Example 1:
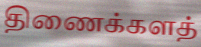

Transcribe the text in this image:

திணைக்களத்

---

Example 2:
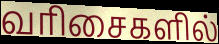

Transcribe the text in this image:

வரிசைகளில்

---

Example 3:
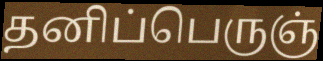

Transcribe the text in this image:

தனிப்பெருஞ்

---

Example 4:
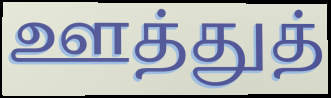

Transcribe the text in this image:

ஊத்துத்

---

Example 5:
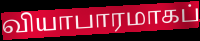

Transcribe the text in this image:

வியாபாரமாகப்